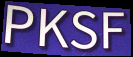
PKSF